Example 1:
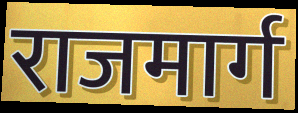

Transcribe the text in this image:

राजमार्ग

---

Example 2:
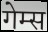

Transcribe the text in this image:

गेम्स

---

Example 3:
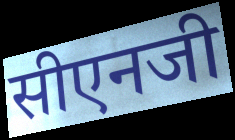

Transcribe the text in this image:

सीएनजी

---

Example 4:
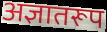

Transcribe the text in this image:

अज्ञातरूप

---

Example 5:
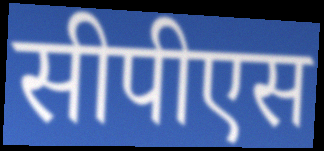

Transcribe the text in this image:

सीपीएस